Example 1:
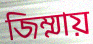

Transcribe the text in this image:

জিম্মায়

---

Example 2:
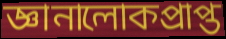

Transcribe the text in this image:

জ্ঞানালোকপ্রাপ্ত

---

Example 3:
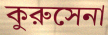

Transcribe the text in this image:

কুরুসেনা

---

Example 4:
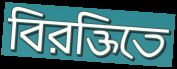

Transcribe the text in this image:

বিরক্তিতে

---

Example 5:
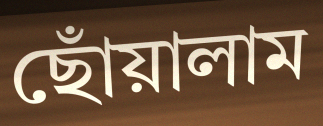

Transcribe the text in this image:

ছোঁয়ালাম